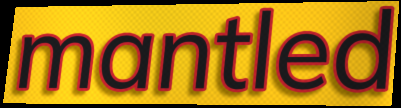
mantled